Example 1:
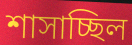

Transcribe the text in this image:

শাসাচ্ছিল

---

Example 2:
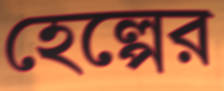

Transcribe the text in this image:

হেল্পের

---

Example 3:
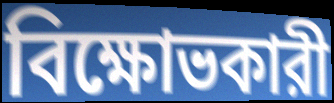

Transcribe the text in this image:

বিক্ষোভকারী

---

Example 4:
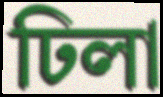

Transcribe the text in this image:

ঢিলা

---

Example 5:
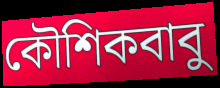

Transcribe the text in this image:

কৌশিকবাবু